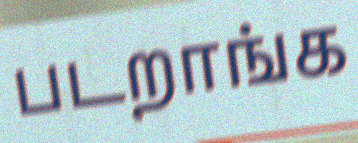
படறாங்க